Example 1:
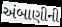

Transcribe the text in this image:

અંબાણીની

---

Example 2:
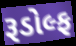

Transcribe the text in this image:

રૂડોલ્ફ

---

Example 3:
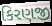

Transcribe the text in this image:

કિરણજી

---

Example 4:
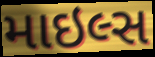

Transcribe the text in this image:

માઇલ્સ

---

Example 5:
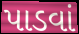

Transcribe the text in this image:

પાડવાં